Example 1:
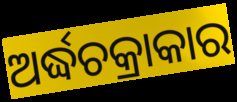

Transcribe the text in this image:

ଅର୍ଦ୍ଧଚକ୍ରାକାର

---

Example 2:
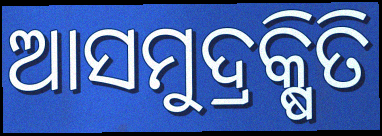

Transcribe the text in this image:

ଆସମୁଦ୍ରକ୍ଷିତି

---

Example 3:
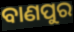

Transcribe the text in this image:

ବାଣପୁର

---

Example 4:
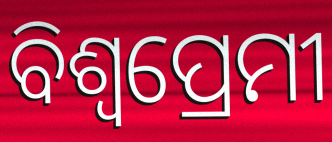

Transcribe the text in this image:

ବିଶ୍ବପ୍ରେମୀ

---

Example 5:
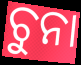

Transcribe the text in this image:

ଚୁନା